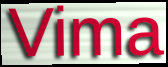
Vima